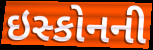
ઇસ્કોનની